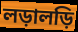
লড়ালড়ি